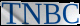
TNBC